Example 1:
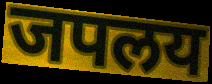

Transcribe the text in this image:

जपलय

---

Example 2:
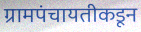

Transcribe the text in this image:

ग्रामपंचायतीकडून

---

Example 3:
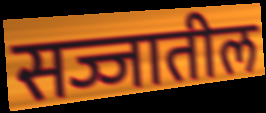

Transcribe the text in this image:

सज्जातील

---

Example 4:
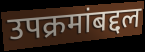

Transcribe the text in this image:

उपक्रमांबद्दल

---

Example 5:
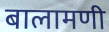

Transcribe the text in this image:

बालामणी